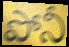
పోనీ